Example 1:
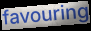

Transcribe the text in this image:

favouring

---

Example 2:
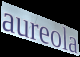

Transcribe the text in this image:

aureola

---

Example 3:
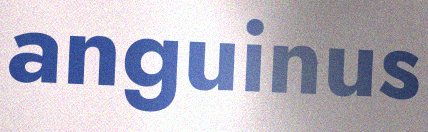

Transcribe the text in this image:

anguinus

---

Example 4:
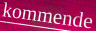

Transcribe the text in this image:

kommende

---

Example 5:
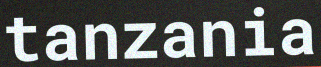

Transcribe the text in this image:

tanzania